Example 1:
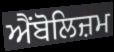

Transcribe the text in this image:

ਐਂਬੋਲਿਜ਼ਮ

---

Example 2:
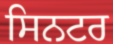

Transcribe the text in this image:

ਸਿਨਟਰ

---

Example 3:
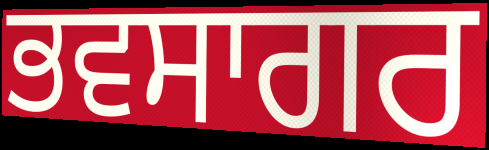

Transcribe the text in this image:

ਭਵਸਾਗਰ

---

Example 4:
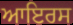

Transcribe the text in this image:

ਆਇਰਸ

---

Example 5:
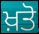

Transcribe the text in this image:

ਖ਼ਤੋ